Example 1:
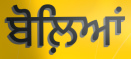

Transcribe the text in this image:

ਬੋਲ਼ਿਆਂ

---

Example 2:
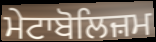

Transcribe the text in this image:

ਮੇਟਾਬੋਲਿਜ਼ਮ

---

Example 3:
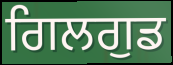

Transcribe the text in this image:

ਗਿਲਗੁਡ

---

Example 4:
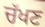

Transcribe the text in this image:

ਚੱਖਣ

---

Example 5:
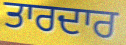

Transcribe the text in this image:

ਤਾਰਦਾਰ